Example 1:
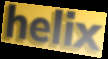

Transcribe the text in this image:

helix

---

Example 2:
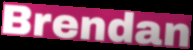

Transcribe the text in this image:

Brendan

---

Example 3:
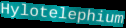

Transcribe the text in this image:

Hylotelephium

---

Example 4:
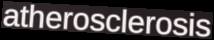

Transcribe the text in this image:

atherosclerosis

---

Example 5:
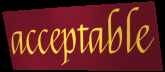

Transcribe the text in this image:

acceptable